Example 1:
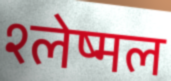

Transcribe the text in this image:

श्लेष्मल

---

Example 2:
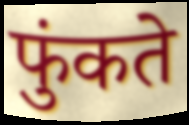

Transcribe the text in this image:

फुंकते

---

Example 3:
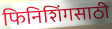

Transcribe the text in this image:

फिनिशिंगसाठी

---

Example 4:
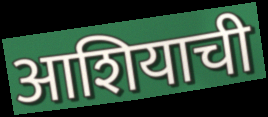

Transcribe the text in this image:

आशियाची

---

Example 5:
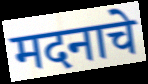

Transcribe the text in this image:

मदनाचे